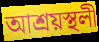
আশ্ৰয়স্থলী